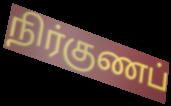
நிர்குணப்